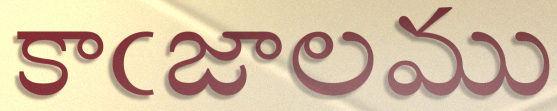
కాఁజాలము